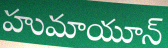
హుమాయూన్